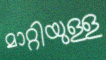
മാറ്റിയുള്ള